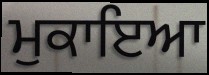
ਮੁਕਾਇਆ